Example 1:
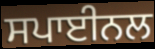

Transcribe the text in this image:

ਸਪਾਈਨਲ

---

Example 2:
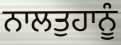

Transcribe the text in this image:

ਨਾਲਤੁਹਾਨੂੰ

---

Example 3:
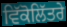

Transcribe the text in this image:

ਵਿੱਕੋਲਿੱਤਰੇ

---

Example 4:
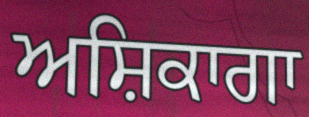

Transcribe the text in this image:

ਅਸ਼ਿਕਾਗਾ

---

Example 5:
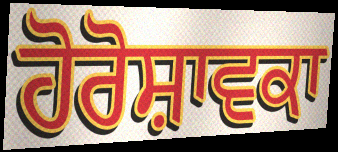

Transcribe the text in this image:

ਹੋਰੋਸ਼ਾਵਕਾ